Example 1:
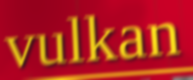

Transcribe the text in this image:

vulkan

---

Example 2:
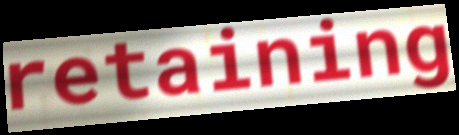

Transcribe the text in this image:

retaining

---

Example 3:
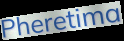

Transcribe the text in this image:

Pheretima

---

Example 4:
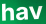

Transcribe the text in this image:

hav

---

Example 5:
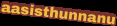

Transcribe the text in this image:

aasisthunnanu